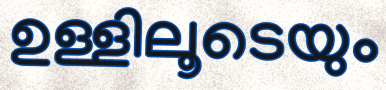
ഉള്ളിലൂടെയും